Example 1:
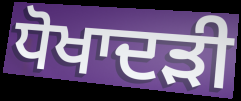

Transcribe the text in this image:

ਧੋਖਾਦੜੀ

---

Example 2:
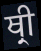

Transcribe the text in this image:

ਥ੍ਰੀ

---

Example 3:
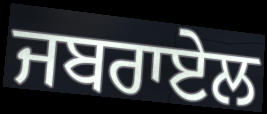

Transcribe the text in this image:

ਜਬਰਾਏਲ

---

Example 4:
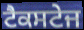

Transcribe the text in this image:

ਟੈਕਸਟੇਜ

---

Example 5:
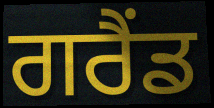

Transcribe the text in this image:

ਗਰੈਂਡ